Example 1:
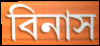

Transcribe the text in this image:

বিনাস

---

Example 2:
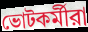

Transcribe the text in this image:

ভোটকর্মীরা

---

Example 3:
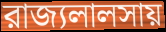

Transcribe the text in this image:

রাজ্যলালসায়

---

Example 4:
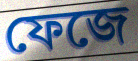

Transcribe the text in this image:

ফেজে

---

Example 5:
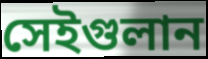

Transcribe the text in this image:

সেইগুলান